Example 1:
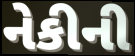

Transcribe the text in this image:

નેકીની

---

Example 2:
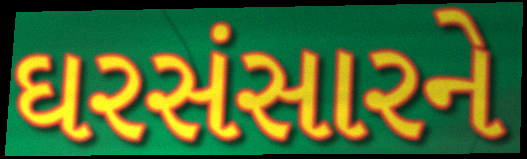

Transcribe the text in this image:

ઘરસંસારને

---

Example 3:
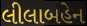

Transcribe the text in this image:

લીલાબહેન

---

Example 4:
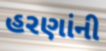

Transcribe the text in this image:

હરણાંની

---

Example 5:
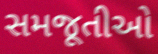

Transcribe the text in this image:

સમજૂતીઓ